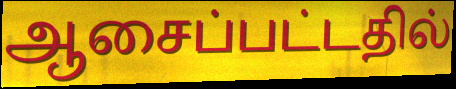
ஆசைப்பட்டதில்